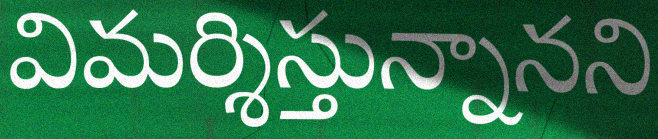
విమర్శిస్తున్నానని